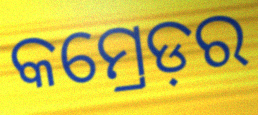
କମ୍ରେଡ଼ର